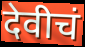
देवीचं